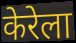
केरेला